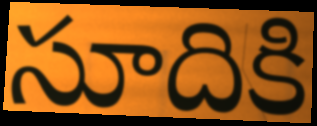
సూదికి